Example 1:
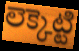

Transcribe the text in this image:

లెక్కెట్టి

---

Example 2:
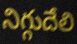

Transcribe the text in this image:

నిగ్గుదేలి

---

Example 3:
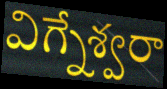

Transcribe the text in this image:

విగ్నేశ్వరా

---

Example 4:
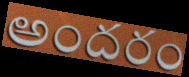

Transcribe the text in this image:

అందరం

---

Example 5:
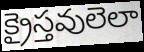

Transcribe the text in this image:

క్రైస్తవులెలా